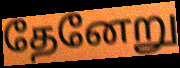
தேனேறு